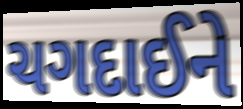
ચગદાઈને